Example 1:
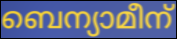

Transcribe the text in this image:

ബെന്യാമീന്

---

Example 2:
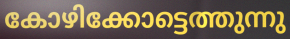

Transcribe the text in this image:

കോഴിക്കോട്ടെത്തുന്നു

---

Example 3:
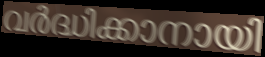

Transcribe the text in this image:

വർദ്ധിക്കാനായി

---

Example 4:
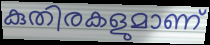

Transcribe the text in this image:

കുതിരകളുമാണ്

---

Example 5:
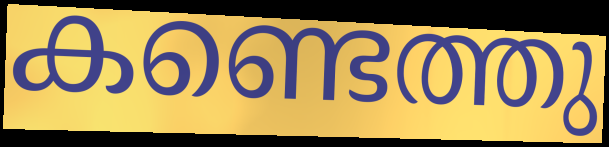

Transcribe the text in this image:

കണ്ടെത്തു